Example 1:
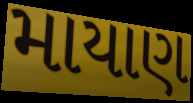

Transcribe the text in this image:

માયાણ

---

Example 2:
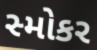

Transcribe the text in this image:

સ્મોકર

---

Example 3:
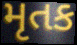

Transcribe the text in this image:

મૃતક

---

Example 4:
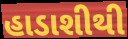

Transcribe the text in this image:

હાડાશીથી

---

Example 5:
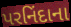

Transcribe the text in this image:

પરનિંદાના